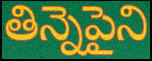
తిన్నెపైని